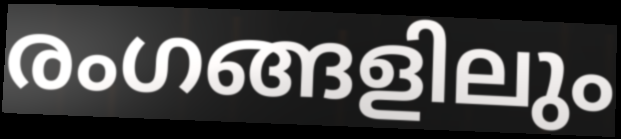
രംഗങ്ങളിലും